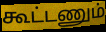
கூட்டணும்